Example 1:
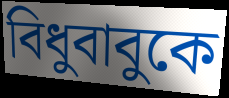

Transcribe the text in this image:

বিধুবাবুকে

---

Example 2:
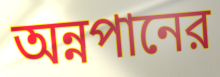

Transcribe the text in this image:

অন্নপানের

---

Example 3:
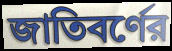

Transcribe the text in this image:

জাতিবর্ণের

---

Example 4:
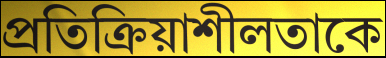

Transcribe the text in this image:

প্রতিক্রিয়াশীলতাকে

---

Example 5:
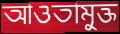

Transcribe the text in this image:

আওতামুক্ত